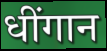
धींगान